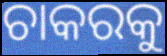
ଚାକରକୁ